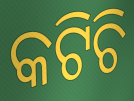
କଟିଚି